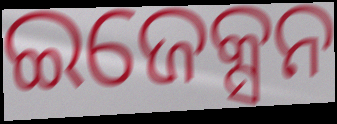
ଇଜେକ୍ସନ